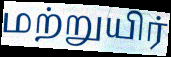
மற்றுயிர்